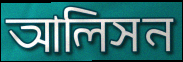
আলিসন